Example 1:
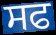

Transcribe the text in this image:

ਸਫ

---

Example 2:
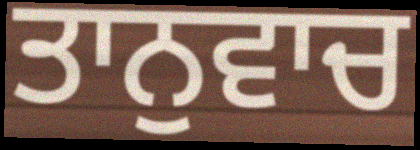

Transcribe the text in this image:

ਤਾਨੁਵਾਚ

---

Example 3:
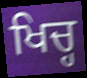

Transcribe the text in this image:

ਖਿਚ੍ਹ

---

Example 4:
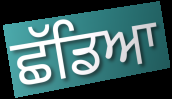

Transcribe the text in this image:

ਛੱਡਿਆ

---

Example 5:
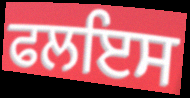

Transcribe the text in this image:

ਫਲਇਸ